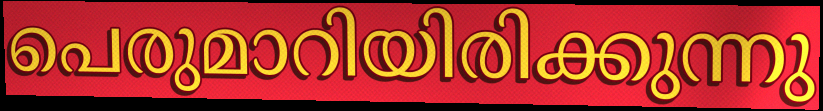
പെരുമാറിയിരിക്കുന്നു